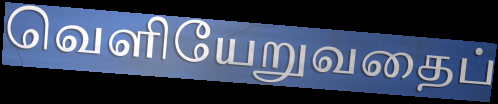
வெளியேறுவதைப்